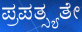
ಪ್ರಪತ್ಸ್ಯತೇ